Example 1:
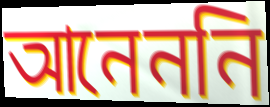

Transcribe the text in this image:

আনেননি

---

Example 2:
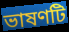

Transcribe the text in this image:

ভাষণটি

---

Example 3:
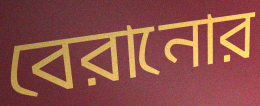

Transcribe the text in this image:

বেরানোর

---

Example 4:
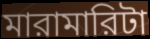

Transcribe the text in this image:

মারামারিটা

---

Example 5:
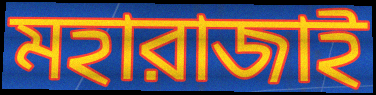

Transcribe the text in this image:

মহারাজাই